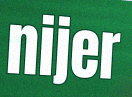
nijer